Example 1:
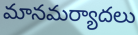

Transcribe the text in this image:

మానమర్యాదలు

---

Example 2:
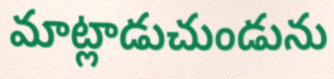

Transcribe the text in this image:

మాట్లాడుచుండును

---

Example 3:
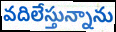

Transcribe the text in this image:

వదిలేస్తున్నాను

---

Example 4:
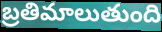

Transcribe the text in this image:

బ్రతిమాలుతుంది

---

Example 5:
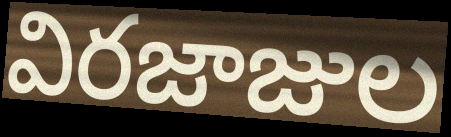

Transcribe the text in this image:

విరజాజుల